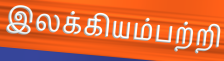
இலக்கியம்பற்றி